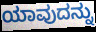
ಯಾವುದನ್ನು